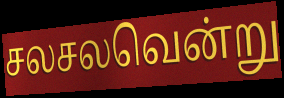
சலசலவென்று